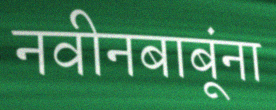
नवीनबाबूंना